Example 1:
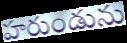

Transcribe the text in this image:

హరుండును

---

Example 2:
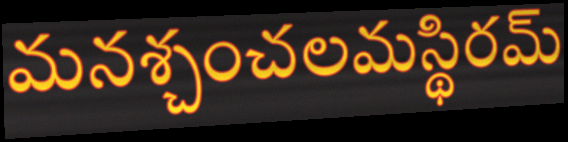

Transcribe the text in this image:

మనశ్చంచలమస్థిరమ్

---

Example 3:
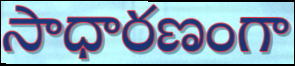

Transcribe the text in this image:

సాధారణంగా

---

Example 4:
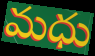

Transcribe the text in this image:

మధు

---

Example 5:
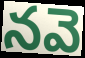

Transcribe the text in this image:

నవె